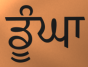
ਡੂੰਘਾ